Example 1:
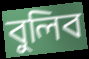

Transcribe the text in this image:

বুলিব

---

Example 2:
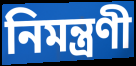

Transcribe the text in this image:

নিমন্ত্ৰণী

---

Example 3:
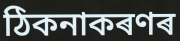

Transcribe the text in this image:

ঠিকনাকৰণৰ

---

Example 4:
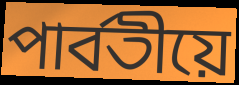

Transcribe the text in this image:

পাৰ্বতীয়ে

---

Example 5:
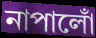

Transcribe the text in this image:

নাপালোঁ